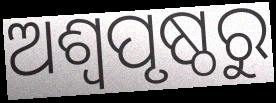
ଅଶ୍ଵପୃଷ୍ଠରୁ